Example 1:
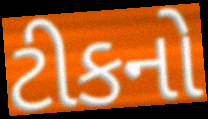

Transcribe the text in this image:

ટીકનો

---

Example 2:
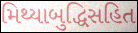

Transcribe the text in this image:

મિથ્યાબુદ્ધિસહિત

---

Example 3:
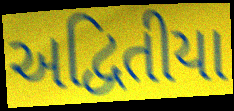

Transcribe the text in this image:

અદ્વિતીયા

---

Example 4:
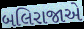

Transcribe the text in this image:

બલિરાજાએ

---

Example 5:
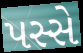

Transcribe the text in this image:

પસ્સે